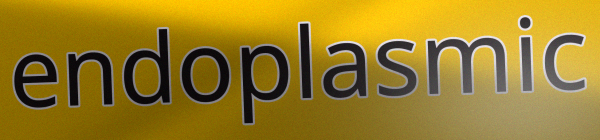
endoplasmic